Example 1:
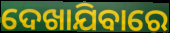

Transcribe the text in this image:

ଦେଖାଯିବାରେ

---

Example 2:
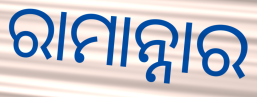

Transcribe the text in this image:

ରାମାନ୍ନାର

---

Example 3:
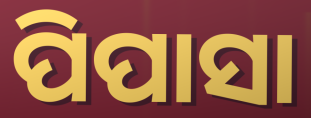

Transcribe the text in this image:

ପିପାସା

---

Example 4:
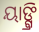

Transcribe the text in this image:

ୟାଙ୍ଗ୍ରି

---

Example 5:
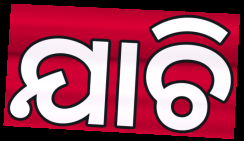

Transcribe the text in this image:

ଯାଚି